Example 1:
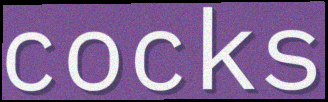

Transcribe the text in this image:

cocks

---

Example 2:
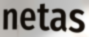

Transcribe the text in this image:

netas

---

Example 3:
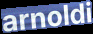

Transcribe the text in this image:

arnoldi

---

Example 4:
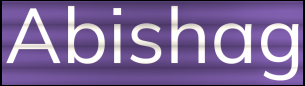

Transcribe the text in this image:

Abishag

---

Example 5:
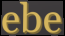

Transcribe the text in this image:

ebe